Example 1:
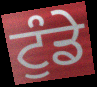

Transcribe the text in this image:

ਟੁੰਡੇ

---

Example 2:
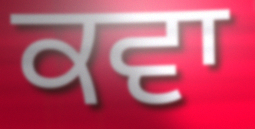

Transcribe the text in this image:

ਕਵਾ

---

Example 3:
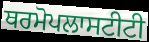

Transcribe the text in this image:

ਥਰਮੋਪਲਾਸਟੀਟੀ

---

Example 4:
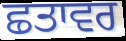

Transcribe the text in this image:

ਛਤਾਵਰ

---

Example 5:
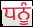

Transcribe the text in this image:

ਧਨੂੰ